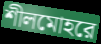
শীলমোহরে